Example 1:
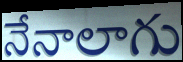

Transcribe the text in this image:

నేనాలాగు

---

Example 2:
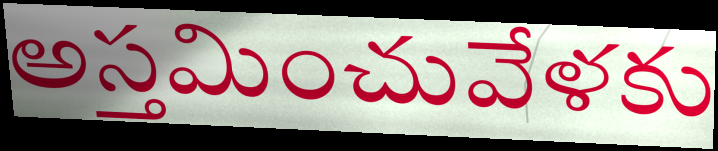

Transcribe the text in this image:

అస్తమించువేళకు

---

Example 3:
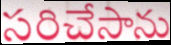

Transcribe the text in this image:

సరిచేసాను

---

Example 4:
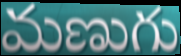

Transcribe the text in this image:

మణుగు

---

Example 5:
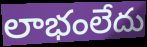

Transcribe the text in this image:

లాభంలేదు